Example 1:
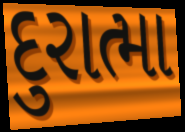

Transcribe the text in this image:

દુરાત્મા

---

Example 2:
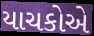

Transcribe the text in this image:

યાચકોએ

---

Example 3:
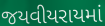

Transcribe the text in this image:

જયવીયરાયમાં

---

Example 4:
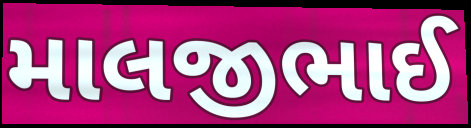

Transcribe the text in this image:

માલજીભાઈ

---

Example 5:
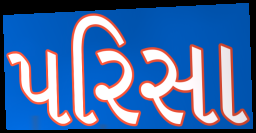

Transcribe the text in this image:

પરિસા